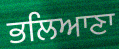
ਭਲਿਆਣਾ